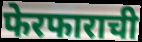
फेरफाराची